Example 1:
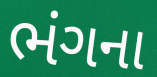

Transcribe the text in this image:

ભંગના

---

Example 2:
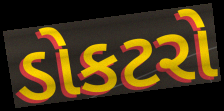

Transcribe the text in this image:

ડોકટરો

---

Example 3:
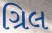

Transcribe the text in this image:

ગ્રિલ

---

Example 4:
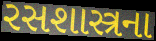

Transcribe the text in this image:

રસશાસ્ત્રના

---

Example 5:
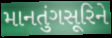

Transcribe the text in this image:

માનતુંગસૂરિને